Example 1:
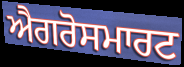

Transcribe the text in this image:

ਐਗਰੋਸਮਾਰਟ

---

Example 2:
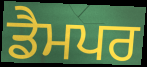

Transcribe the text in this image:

ਡੈਮਪਰ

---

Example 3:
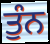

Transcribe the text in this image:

ਤੁੰਨ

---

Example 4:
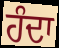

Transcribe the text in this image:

ਹੰਦਾ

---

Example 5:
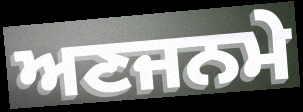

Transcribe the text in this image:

ਅਣਜਨਮੇ